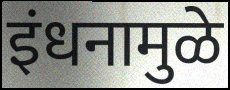
इंधनामुळे